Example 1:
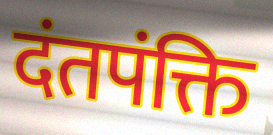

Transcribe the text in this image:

दंतपंक्ति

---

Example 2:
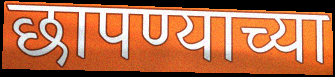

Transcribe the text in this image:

छापण्याच्या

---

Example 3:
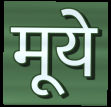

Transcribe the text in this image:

मूये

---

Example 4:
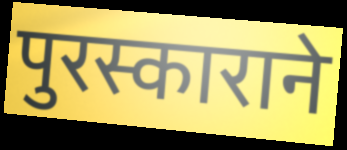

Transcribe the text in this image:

पुरस्काराने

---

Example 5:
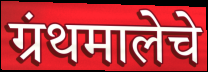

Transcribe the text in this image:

ग्रंथमालेचे